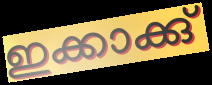
ഇക്കാക്കു്